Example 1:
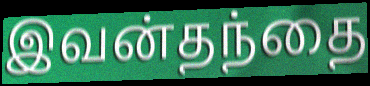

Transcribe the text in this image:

இவன்தந்தை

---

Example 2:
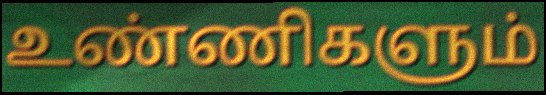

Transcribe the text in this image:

உண்ணிகளும்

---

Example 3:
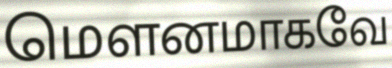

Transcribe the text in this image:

மெளனமாகவே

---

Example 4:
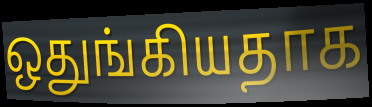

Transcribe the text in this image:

ஒதுங்கியதாக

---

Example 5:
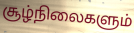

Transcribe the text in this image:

சூழ்நிலைகளும்